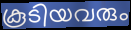
കൂടിയവരും